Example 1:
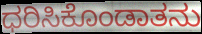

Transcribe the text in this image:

ಧರಿಸಿಕೊಂಡಾತನು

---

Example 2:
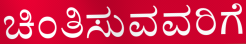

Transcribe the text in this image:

ಚಿಂತಿಸುವವರಿಗೆ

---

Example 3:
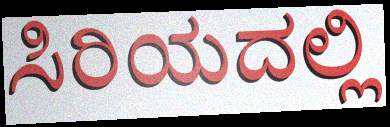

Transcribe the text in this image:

ಸಿರಿಯದಲ್ಲಿ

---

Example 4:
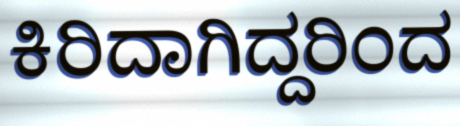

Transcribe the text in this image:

ಕಿರಿದಾಗಿದ್ದರಿಂದ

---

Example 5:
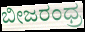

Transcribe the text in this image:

ಬೀಜರಂಧ್ರ